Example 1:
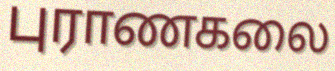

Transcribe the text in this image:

புராணகலை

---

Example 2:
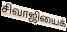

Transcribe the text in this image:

சிவாஜியைக்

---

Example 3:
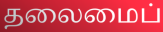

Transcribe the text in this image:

தலைமைப்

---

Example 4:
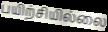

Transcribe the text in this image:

பயிற்சியில்லை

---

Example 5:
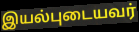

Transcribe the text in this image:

இயல்புடையவர்